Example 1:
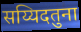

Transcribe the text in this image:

सय्यिदतुना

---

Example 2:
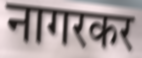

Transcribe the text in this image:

नागरकर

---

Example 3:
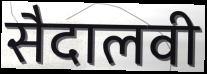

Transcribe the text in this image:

सैदालवी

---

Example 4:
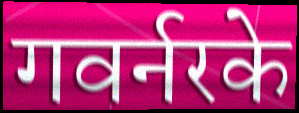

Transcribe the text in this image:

गवर्नरके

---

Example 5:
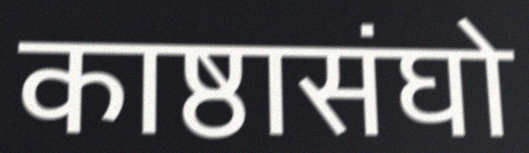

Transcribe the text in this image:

काष्ठासंघो